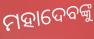
ମହାଦେବଙ୍କୁ